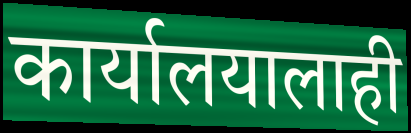
कार्यालयालाही